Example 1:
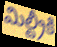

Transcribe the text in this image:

మిల్ట్రీకి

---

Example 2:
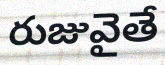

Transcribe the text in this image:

రుజువైతే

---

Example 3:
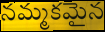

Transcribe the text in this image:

నమ్మకమైన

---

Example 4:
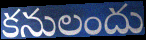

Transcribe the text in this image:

కనులందు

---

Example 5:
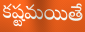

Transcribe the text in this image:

కష్టమయితే